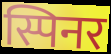
स्पिनर